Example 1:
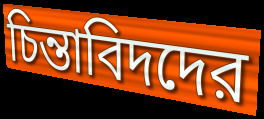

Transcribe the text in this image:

চিন্তাবিদদের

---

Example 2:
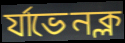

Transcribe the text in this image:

র্যাভেনক্ল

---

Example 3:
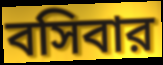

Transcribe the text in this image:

বসিবার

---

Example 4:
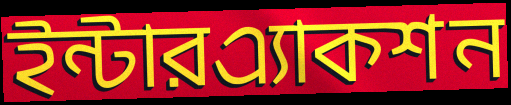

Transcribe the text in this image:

ইন্টারএ্যাকশন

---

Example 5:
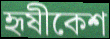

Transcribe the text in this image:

হৃষীকেশ